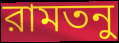
রামতনু